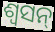
ଶ୍ୱସନ୍